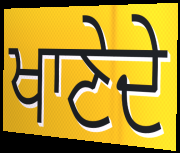
ਖਾਣੇਦੇ